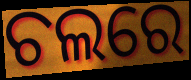
ଚଲରେ